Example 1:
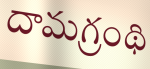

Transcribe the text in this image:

దామగ్రంథి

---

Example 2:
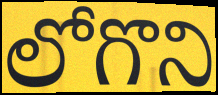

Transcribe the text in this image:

లోగొని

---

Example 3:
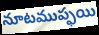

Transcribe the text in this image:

నూటముప్ఫయి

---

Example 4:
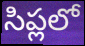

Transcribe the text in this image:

సిప్లలో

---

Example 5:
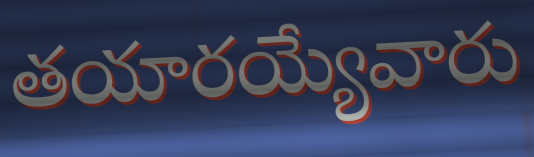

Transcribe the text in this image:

తయారయ్యేవారు